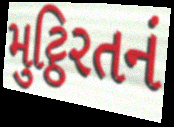
મુટ્ઠિરતનં